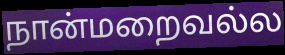
நான்மறைவல்ல